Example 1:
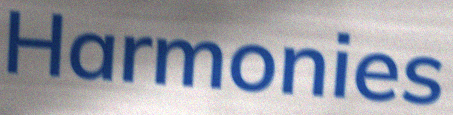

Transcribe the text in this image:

Harmonies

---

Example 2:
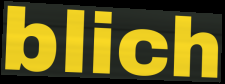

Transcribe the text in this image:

blich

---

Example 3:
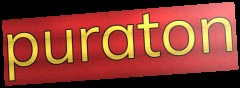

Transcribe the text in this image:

puraton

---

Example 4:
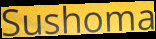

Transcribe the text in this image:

Sushoma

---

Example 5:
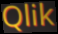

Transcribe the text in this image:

Qlik